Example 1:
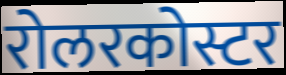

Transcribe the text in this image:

रोलरकोस्टर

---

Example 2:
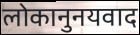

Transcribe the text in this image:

लोकानुनयवाद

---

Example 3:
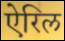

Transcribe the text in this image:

ऐरिल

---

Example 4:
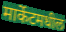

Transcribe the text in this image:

मार्केटमधील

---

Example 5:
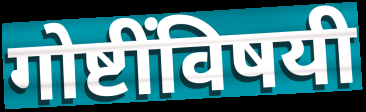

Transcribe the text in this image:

गोष्टींविषयी